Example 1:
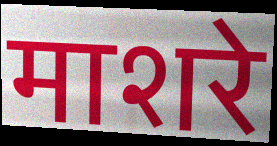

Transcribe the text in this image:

माशरे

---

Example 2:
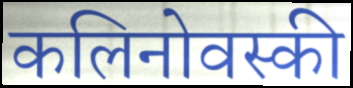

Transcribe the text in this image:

कलिनोवस्की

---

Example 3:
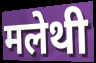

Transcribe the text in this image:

मलेथी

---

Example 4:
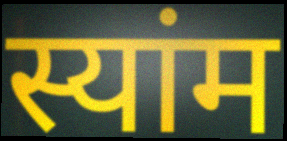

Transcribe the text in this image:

स्यांम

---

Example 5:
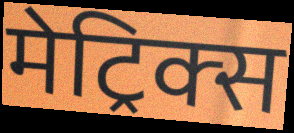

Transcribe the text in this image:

मेट्रिक्‍स